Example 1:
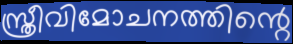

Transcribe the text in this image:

സ്ത്രീവിമോചനത്തിന്റെ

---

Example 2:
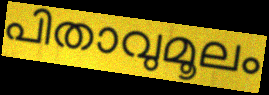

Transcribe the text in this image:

പിതാവുമൂലം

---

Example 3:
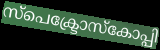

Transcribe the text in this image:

സ്പെക്ട്രോസ്കോപ്പി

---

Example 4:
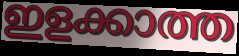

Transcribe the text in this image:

ഇളക്കാത്ത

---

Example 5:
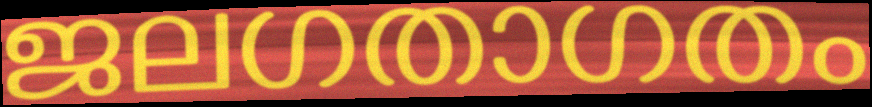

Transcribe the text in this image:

ജലഗതാഗതം